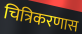
चित्रिकरणास